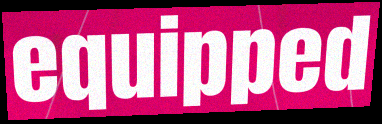
equipped